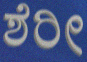
ಶೆರೀ